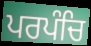
ਪਰਪੰਚਿ